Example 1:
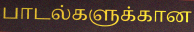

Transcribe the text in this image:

பாடல்களுக்கான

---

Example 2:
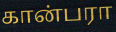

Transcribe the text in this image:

கான்பரா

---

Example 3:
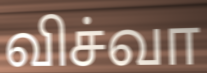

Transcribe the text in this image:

விச்வா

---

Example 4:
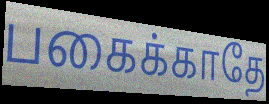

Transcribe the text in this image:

பகைக்காதே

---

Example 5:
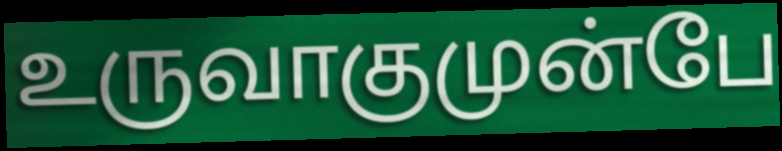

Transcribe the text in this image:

உருவாகுமுன்பே